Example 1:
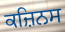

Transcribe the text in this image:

ਕਜ਼ਿਨਸ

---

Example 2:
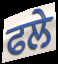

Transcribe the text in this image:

ਫਲੇ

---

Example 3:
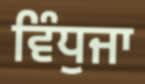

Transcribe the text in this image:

ਵਿੰਧੁਜਾ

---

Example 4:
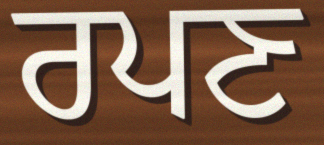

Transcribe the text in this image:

ਰਪਣ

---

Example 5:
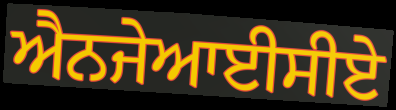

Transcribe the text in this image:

ਐਨਜੇਆਈਸੀਏ